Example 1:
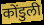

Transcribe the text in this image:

कोंडुली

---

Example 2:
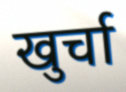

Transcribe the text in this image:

खुर्चा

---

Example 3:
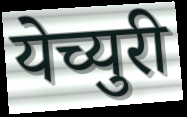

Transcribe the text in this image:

येच्युरी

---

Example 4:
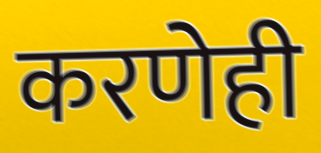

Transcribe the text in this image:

करणेही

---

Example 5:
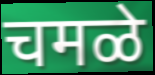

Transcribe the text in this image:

चमळे